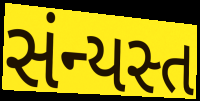
સંન્યસ્ત